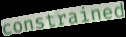
constrained